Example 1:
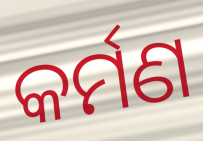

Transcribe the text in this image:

କର୍ମଣ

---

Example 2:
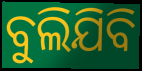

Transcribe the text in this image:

ବୁଲିଯିବି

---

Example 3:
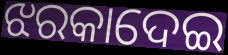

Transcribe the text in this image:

ଝରକାଦେଇ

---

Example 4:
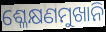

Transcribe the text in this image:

ଶ୍ଳେକ୍ଷଣମୁଖାନି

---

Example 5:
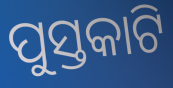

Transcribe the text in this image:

ପୁସ୍ତକାଟି